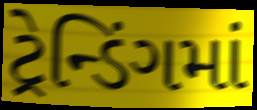
ટ્રેન્ડિંગમાં